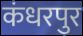
कंधरपुर